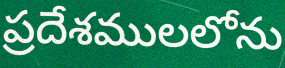
ప్రదేశములలోను